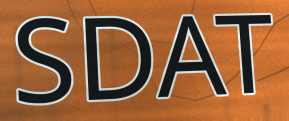
SDAT